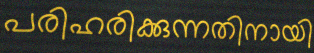
പരിഹരിക്കുന്നതിനായി